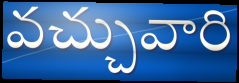
వచ్చువారి